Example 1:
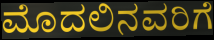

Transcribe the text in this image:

ಮೊದಲಿನವರಿಗೆ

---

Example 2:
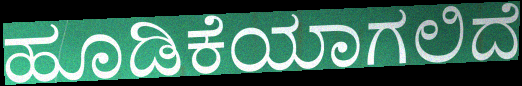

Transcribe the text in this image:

ಹೂಡಿಕೆಯಾಗಲಿದೆ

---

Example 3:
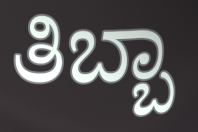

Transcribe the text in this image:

ತಿಬ್ಬಾ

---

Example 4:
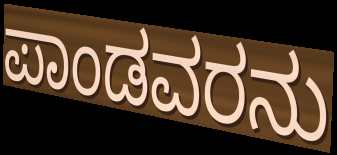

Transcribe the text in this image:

ಪಾಂಡವರನು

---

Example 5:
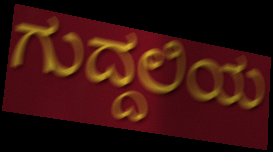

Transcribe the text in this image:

ಗುದ್ದಲಿಯ